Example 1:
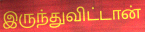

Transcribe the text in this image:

இருந்துவிட்டான்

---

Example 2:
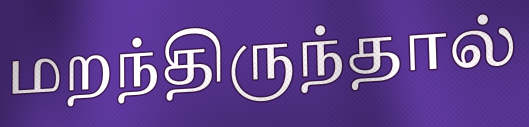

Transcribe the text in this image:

மறந்திருந்தால்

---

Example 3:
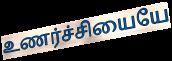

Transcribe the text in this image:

உணர்ச்சியையே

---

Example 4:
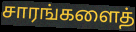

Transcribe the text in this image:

சாரங்களைத்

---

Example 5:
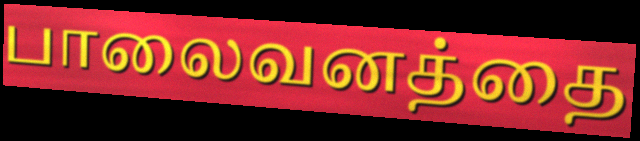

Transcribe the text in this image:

பாலைவனத்தை